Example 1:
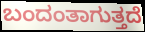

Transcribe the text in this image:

ಬಂದಂತಾಗುತ್ತದೆ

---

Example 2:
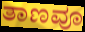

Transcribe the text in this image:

ತಾಣವೂ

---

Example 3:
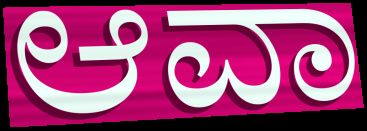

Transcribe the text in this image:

ಆವಾ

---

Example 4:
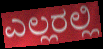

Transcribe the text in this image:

ಎಲ್ಲರಲ್ಲಿ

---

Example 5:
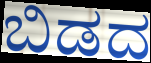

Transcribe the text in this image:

ಬಿಡದ